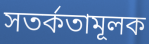
সতর্কতামূলক